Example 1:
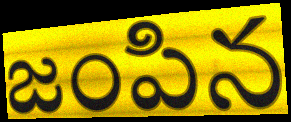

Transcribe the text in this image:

జంపిన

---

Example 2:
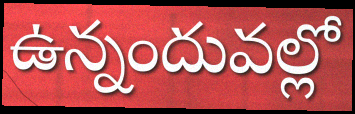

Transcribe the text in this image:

ఉన్నందువల్లో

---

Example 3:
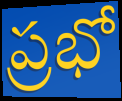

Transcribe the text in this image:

ప్రభో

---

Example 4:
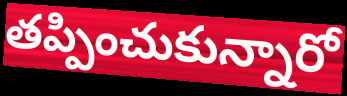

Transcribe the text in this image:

తప్పించుకున్నారో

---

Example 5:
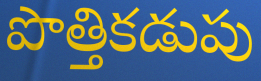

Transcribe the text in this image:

పొత్తికడుపు